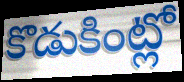
కొడుకింట్లో